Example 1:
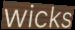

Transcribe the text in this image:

wicks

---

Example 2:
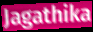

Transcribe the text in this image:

Jagathika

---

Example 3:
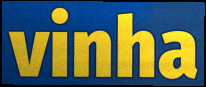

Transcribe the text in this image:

vinha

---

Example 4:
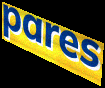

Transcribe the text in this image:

pares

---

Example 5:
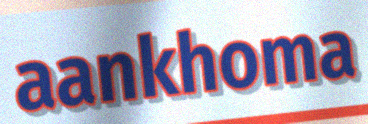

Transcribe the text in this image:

aankhoma